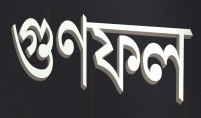
গুণফল